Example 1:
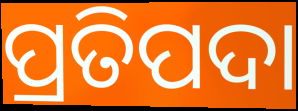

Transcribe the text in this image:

ପ୍ରତିପଦା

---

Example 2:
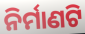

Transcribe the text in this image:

ନିର୍ମାଣଟି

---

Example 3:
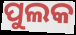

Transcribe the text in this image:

ପୁଲକ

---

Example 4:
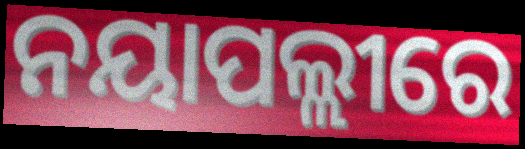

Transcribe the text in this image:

ନୟାପଲ୍ଲୀରେ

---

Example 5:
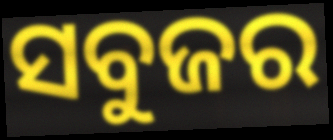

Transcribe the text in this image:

ସବୁଜର